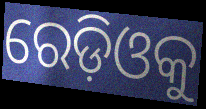
ରେଡ଼ିଓକୁ